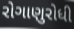
રોગાણુરોધી